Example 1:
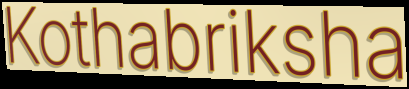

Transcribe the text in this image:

Kothabriksha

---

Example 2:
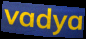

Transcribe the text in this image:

vadya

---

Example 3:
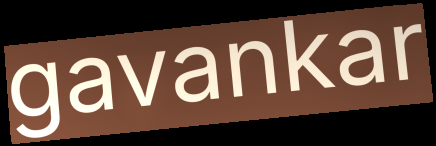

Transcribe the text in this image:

gavankar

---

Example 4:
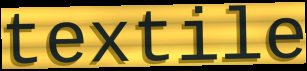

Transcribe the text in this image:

textile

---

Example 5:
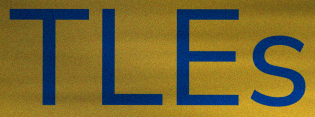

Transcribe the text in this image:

TLEs